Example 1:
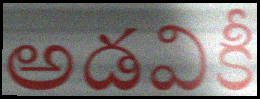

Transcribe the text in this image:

అడవికీ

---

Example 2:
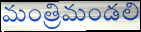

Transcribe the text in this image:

మంత్రిమండలి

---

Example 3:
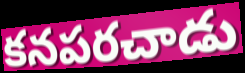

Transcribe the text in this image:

కనపరచాడు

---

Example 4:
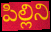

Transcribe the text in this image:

పిల్లిని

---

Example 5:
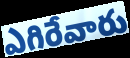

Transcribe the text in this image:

ఎగిరేవారు